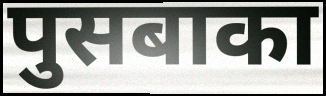
पुसबाका